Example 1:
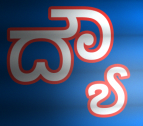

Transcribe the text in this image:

ದ್ಯೌ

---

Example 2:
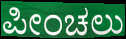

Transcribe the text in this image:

ಪೀಂಚಲು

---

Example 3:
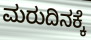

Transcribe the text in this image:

ಮರುದಿನಕ್ಕೆ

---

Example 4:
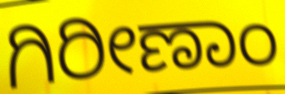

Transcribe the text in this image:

ಗಿರೀಣಾಂ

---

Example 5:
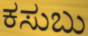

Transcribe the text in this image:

ಕಸುಬು